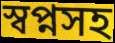
স্বপ্নসহ